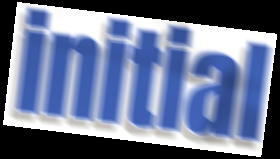
initial